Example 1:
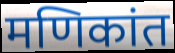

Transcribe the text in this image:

मणिकांत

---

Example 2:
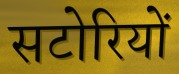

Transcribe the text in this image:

सटोरियों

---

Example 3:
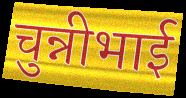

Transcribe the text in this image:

चुन्नीभाई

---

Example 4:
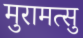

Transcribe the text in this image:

मुरामत्सु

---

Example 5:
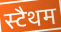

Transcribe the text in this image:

स्टैथम